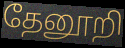
தேனூறி